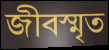
জীবস্মৃত